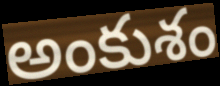
అంకుశం